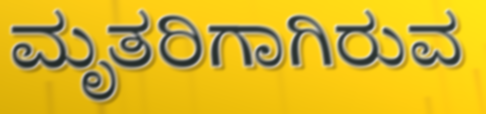
ಮೃತರಿಗಾಗಿರುವ